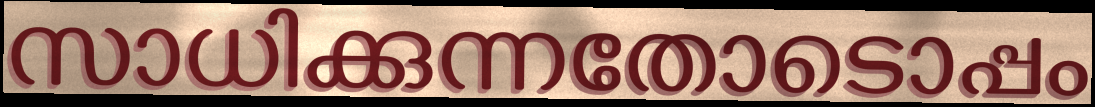
സാധിക്കുന്നതോടൊപ്പം